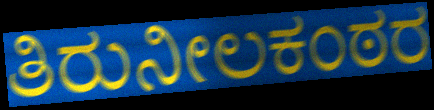
ತಿರುನೀಲಕಂಠರ